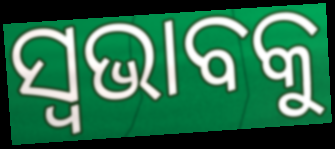
ସ୍ୱଭାବକୁ